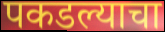
पकडल्याचा